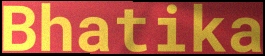
Bhatika